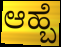
ಆಹ್ಬೆ